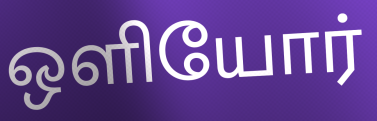
ஒளியோர்